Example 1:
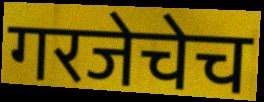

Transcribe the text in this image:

गरजेचेच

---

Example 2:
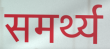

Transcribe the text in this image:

समर्थ्य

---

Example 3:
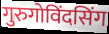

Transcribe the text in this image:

गुरुगोविंदसिंग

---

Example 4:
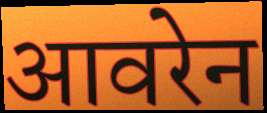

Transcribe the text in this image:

आवरेन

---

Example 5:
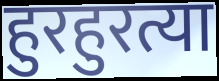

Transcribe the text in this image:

हुरहुरत्या